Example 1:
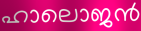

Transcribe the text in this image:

ഹാലൊജൻ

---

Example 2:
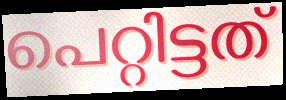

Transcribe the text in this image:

പെറ്റിട്ടത്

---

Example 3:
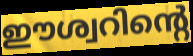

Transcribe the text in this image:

ഈശ്വറിന്റെ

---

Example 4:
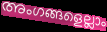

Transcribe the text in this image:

അംഗങ്ങളെല്ലാം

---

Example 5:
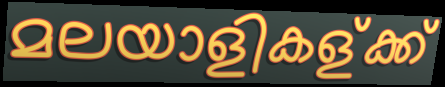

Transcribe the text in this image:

മലയാളികള്ക്ക്